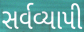
સર્વવ્યાપી